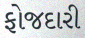
ફોજદારી